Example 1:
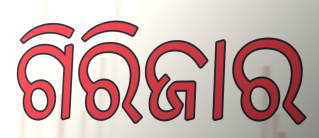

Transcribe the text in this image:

ଗିରିଜାର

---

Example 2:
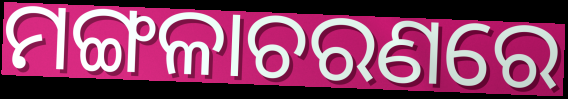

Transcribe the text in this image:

ମଙ୍ଗଳାଚରଣରେ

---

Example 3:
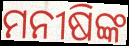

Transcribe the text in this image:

ମନୀଷିଙ୍କ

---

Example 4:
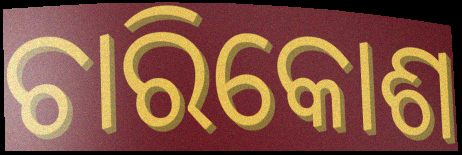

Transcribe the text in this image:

ଚାରିକୋଶ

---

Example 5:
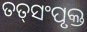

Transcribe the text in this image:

ତତ୍‌ସଂପୃକ୍ତ